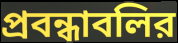
প্রবন্ধাবলির